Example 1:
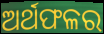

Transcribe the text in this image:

ଅର୍ଥଫଳର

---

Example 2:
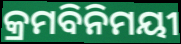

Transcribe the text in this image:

କ୍ରମବିନିମୟୀ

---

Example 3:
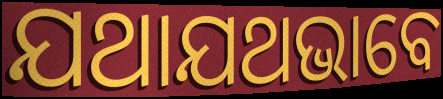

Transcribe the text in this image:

ଯଥାଯଥଭାବେ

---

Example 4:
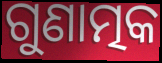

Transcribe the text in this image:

ଗୁଣାତ୍ମକ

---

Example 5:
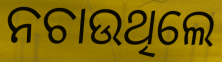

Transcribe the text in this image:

ନଚାଉଥିଲେ